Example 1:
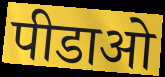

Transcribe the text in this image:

पीडाओ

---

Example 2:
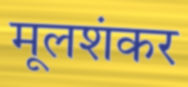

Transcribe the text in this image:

मूलशंकर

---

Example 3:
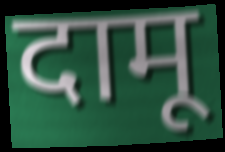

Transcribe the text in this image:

दामू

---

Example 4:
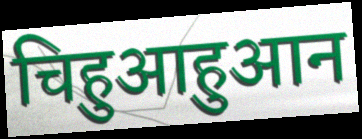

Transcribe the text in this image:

चिहुआहुआन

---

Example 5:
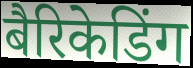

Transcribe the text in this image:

बैरिकेडिंग